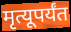
मृत्यूपर्यंत